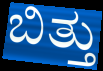
ಬಿತ್ತು